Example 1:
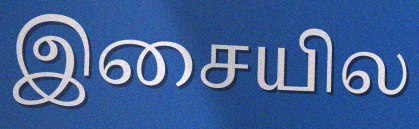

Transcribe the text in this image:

இசையில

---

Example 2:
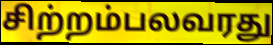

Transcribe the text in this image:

சிற்றம்பலவரது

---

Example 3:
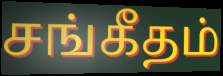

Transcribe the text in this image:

சங்கீதம்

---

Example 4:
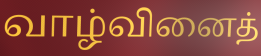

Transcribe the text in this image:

வாழ்வினைத்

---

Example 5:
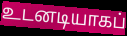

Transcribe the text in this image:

உடனடியாகப்